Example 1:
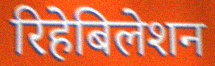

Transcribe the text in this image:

रिहेबिलेशन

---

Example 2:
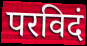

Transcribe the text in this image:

परविदं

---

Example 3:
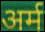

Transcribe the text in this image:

अर्म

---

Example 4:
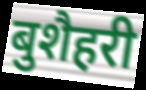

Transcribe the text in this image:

बुशैहरी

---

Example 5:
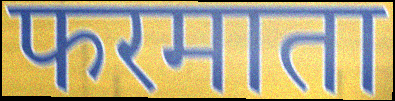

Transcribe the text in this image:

फरमाता